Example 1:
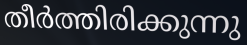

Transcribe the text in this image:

തീർത്തിരിക്കുന്നു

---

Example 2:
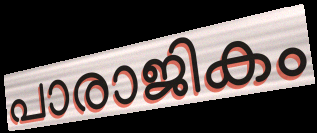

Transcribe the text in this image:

പാരാജികം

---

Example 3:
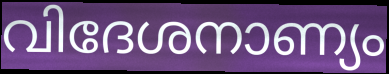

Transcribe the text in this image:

വിദേശനാണ്യം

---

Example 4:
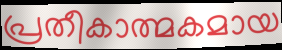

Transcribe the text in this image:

പ്രതീകാത്മകമായ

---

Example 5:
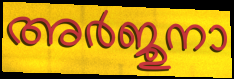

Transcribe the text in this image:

അർജുനാ